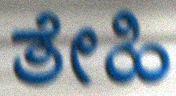
ತೇಹಿ